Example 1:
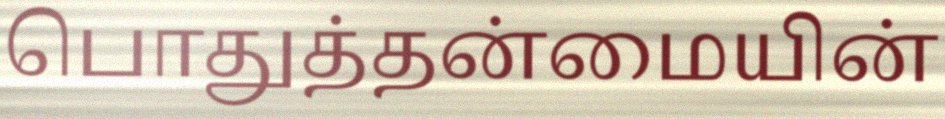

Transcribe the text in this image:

பொதுத்தன்மையின்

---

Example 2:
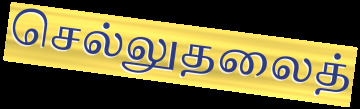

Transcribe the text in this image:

செல்லுதலைத்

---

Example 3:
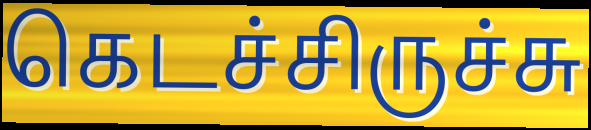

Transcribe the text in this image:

கெடச்சிருச்சு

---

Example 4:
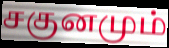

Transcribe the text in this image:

சகுனமும்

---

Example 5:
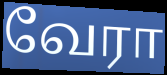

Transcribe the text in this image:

வேரா